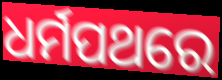
ଧର୍ମପଥରେ